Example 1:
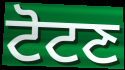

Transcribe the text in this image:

ਟੋਟਣ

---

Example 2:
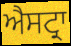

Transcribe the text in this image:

ਐਸਟ੍ਰਾ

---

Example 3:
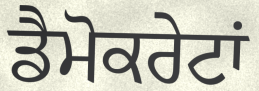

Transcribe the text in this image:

ਡੈਮੋਕਰੇਟਾਂ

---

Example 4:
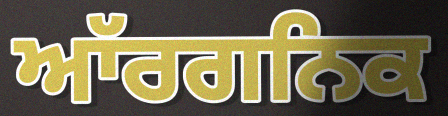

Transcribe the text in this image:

ਆੱਰਗਨਿਕ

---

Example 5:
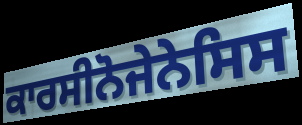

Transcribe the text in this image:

ਕਾਰਸੀਨੋਜੇਨੇਸਿਸ